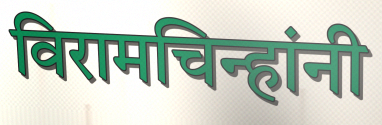
विरामचिन्हांनी